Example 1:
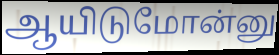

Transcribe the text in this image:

ஆயிடுமோன்னு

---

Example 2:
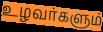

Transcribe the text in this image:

உழவர்களும்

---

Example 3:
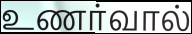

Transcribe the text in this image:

உணர்வால்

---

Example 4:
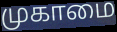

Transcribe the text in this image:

முகாமை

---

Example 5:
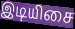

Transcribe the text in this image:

இடியிசை